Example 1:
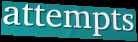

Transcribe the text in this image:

attempts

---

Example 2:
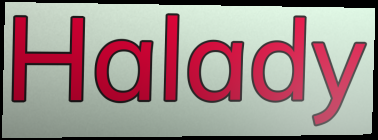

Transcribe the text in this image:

Halady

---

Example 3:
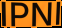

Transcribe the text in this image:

IPNI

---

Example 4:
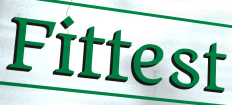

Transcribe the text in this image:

Fittest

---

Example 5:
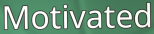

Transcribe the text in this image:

Motivated